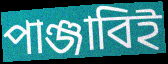
পাঞ্জাবিই